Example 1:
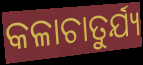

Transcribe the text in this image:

କଳାଚାତୁର୍ଯ୍ୟ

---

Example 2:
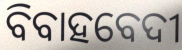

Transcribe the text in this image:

ବିବାହବେଦୀ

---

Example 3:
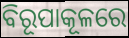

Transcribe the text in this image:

ବିରୂପାକୂଳରେ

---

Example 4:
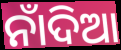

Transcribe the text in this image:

ନାଁଦିଆ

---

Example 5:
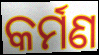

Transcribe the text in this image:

କର୍ମଣ